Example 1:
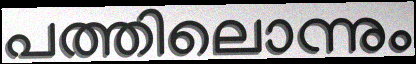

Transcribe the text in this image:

പത്തിലൊന്നും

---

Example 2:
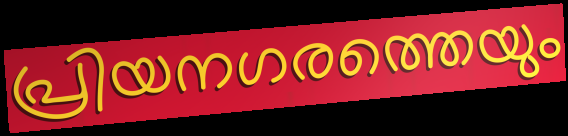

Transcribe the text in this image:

പ്രിയനഗരത്തെയും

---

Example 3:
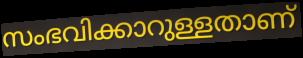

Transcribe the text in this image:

സംഭവിക്കാറുള്ളതാണ്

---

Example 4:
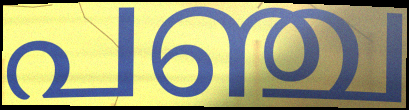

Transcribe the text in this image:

പഞ്ച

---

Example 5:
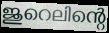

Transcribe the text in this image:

ജുറെലിന്റെ